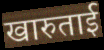
खारुताई